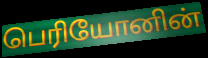
பெரியோனின்